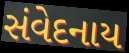
સંવેદનાય